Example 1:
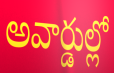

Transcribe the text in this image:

అవార్డుల్లో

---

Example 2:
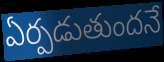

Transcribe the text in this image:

ఏర్పడుతుందనే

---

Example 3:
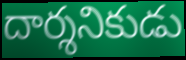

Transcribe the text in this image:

దార్శనికుడు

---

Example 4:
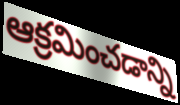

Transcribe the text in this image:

ఆక్రమించడాన్ని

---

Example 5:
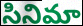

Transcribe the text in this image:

సినిమా